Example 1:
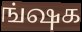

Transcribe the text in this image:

ங்ஷக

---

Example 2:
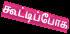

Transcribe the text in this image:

கூட்டிப்போக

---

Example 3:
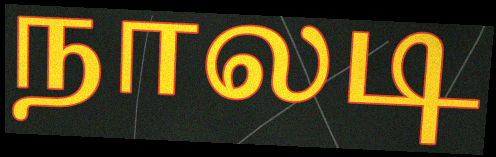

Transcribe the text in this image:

நாலடி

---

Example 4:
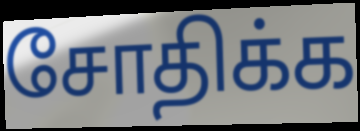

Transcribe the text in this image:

சோதிக்க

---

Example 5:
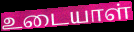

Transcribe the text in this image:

உடையாள்